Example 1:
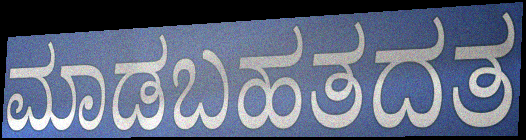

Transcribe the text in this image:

ಮಾಡಬಹತದತ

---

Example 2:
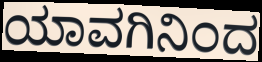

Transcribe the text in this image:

ಯಾವಗಿನಿಂದ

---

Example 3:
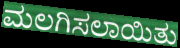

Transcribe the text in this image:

ಮಲಗಿಸಲಾಯಿತು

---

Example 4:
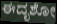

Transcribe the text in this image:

ಈದೃಶೋ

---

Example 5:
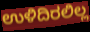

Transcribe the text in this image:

ಉಳಿದಿರಲಿಲ್ಲ